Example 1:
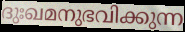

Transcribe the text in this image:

ദുഃഖമനുഭവിക്കുന്ന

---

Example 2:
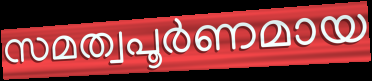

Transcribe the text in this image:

സമത്വപൂർണമായ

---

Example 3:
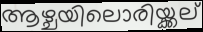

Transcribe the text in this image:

ആഴ്ചയിലൊരിയ്ക്കല്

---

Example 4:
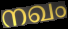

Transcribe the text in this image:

നഖം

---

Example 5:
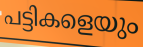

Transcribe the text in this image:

പട്ടികളെയും